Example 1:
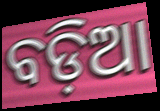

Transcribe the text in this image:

ବଡ଼ିଆ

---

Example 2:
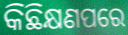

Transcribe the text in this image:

କିଛିକ୍ଷଣପରେ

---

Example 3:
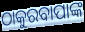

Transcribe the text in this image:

ଠାକୁରବାପାଙ୍କ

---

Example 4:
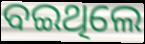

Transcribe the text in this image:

ବଇଥିଲେ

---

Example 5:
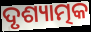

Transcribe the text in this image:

ଦୃଶ୍ୟାତ୍ମକ